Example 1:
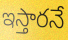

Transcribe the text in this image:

ఇస్తారనే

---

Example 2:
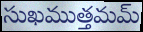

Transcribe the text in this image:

సుఖముత్తమమ్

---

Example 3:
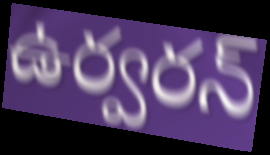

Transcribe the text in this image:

ఉర్వరన్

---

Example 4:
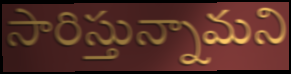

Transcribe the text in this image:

సారిస్తున్నామని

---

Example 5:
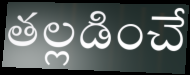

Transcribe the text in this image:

తల్లడించే